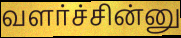
வளர்ச்சின்னு